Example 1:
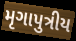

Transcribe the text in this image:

મૃગાપુત્રીય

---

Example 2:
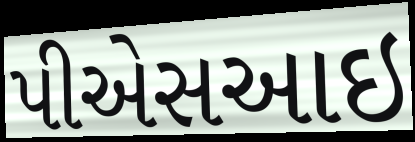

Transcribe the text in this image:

પીએસઆઇ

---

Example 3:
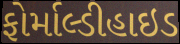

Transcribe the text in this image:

ફોર્માલ્ડીહાઇડ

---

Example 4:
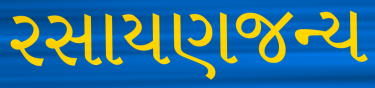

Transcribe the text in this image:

રસાયણજન્ય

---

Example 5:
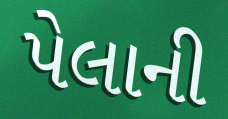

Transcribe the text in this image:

પેલાની